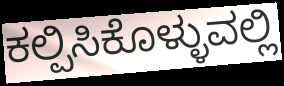
ಕಲ್ಪಿಸಿಕೊಳ್ಳುವಲ್ಲಿ